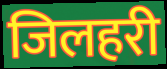
जिलहरी